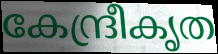
കേന്ദ്രീകൃത